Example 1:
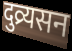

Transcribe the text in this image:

दुव्र्यसन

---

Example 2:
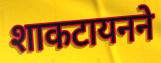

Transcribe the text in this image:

शाकटायनने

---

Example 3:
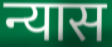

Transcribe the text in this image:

न्‍यास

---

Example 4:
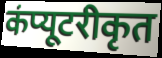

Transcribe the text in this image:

कंप्यूटरीकृत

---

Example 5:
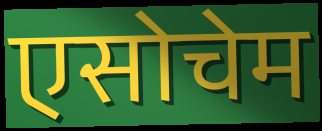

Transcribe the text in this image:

एसोचेम